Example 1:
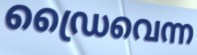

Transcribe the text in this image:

ഡ്രൈവെന്ന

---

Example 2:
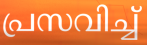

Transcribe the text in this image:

പ്രസവിച്ച്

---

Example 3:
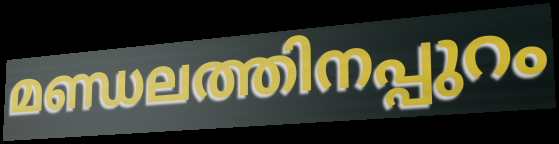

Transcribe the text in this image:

മണ്ഡലത്തിനപ്പുറം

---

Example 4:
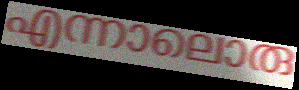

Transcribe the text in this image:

എന്നാലൊരു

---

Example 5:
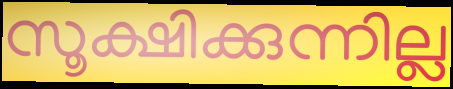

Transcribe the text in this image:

സൂക്ഷിക്കുന്നില്ല